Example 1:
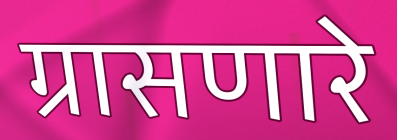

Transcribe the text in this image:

ग्रासणारे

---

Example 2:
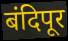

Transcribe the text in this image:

बंदिपूर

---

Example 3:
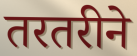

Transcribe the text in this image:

तरतरीने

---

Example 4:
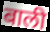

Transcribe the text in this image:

बाली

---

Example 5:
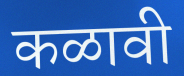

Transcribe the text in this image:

कळावी